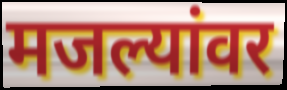
मजल्यांवर